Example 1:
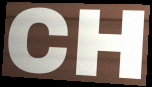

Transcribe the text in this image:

CH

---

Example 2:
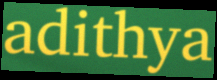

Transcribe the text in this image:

adithya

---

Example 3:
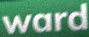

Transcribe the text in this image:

ward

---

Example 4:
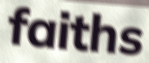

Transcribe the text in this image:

faiths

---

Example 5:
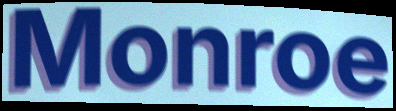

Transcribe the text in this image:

Monroe